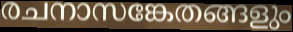
രചനാസങ്കേതങ്ങളും